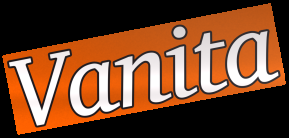
Vanita